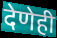
देणेही